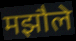
मझौले